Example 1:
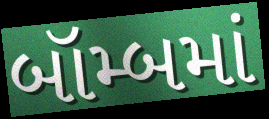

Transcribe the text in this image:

બૉમ્બમાં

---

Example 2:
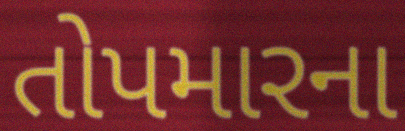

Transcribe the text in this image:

તોપમારના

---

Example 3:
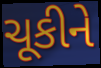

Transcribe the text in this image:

ચૂકીને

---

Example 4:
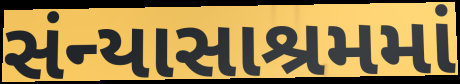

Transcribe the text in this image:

સંન્યાસાશ્રમમાં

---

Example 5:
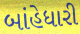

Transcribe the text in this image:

બાંહેધારી